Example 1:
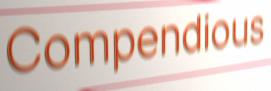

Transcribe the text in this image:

Compendious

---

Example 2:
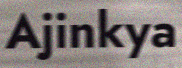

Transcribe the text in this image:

Ajinkya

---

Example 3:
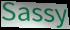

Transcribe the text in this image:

Sassy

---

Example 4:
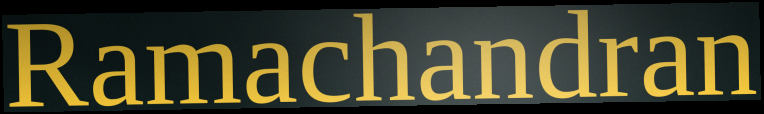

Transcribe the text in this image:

Ramachandran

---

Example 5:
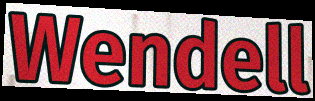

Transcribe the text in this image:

Wendell